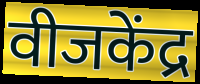
वीजकेंद्र